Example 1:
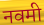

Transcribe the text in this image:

नवमी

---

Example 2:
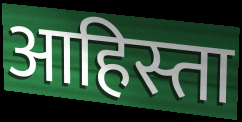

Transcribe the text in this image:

आहिस्‍ता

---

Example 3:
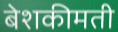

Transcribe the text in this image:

बेशकीमती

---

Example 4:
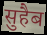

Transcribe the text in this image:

सुहैब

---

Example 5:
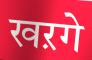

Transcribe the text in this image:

खऱगे